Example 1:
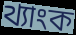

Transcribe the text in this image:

থ্যাংক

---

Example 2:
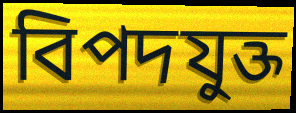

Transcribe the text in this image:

বিপদযুক্ত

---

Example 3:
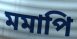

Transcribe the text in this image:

মমাপি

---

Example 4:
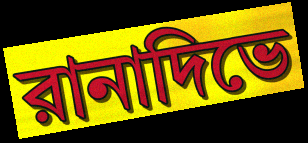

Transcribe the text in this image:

রানাদিভে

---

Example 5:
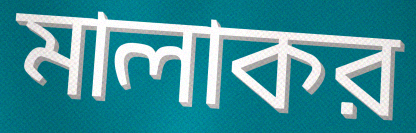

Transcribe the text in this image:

মালাকর